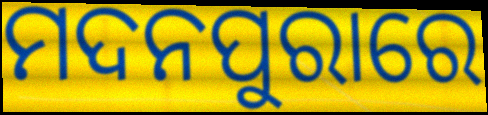
ମଦନପୁରାରେ